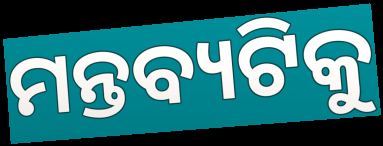
ମନ୍ତବ୍ୟଟିକୁ